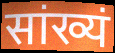
सांख्यं